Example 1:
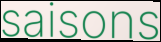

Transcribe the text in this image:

saisons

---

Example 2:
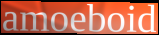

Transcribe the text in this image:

amoeboid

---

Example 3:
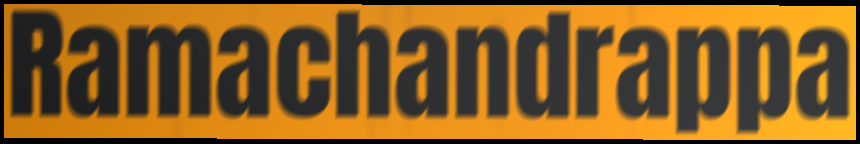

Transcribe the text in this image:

Ramachandrappa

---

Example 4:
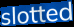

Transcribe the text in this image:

slotted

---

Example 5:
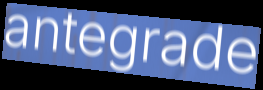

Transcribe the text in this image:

antegrade